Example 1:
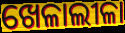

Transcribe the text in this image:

ଖେଳାଲୀଳା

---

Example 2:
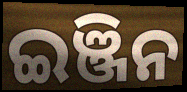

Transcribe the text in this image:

ଇଞ୍ଜିନ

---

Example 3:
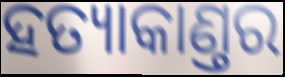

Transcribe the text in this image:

ହତ୍ୟାକାଣ୍ତର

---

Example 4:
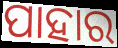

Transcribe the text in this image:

ପାହାର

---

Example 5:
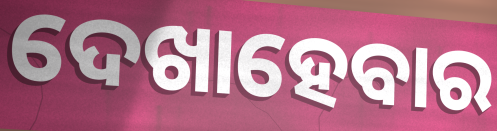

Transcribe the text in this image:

ଦେଖାହେବାର